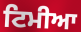
ਟਿਮੀਆ